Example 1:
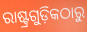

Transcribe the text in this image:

ରାଷ୍ଟ୍ରଗୁଡ଼ିକଠାରୁ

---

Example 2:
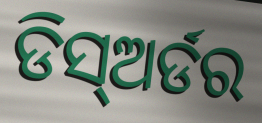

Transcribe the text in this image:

ଡିସ୍ଅର୍ଡର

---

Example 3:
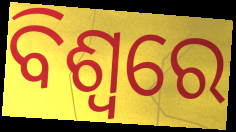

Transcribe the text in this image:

ବିଶ୍ଵରେ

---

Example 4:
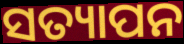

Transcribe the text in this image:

ସତ୍ୟାପନ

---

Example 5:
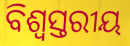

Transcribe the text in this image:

ବିଶ୍ଵସ୍ତରୀୟ